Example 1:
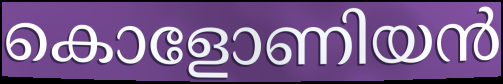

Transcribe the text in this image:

കൊളോണിയൻ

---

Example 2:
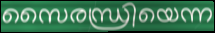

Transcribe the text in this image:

സൈരന്ധ്രിയെന്ന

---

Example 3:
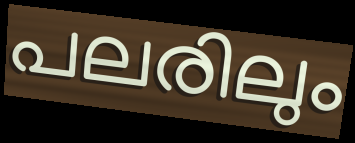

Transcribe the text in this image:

പലരിലും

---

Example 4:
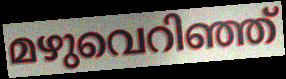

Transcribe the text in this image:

മഴുവെറിഞ്ഞ്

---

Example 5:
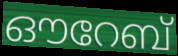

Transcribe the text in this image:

ഔറേബ്